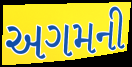
અગમની